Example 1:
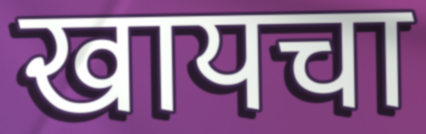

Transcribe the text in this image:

खायचा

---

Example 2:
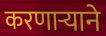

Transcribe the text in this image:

करणाऱ्याने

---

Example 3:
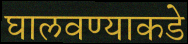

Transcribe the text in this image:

घालवण्याकडे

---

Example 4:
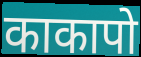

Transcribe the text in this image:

काकापो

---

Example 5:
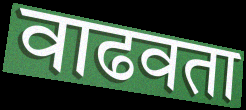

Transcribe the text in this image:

वाढवता